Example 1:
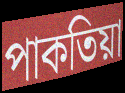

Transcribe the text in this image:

পাকতিয়া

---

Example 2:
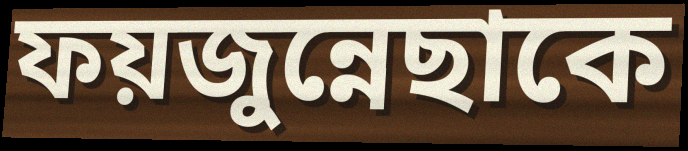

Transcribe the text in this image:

ফয়জুন্নেছাকে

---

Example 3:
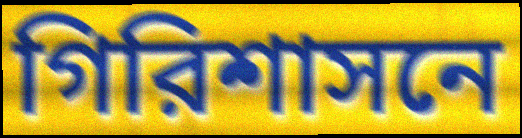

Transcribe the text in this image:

গিরিশাসনে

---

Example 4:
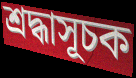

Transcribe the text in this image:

শ্রদ্ধাসূচক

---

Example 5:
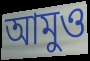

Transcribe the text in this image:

আমুও